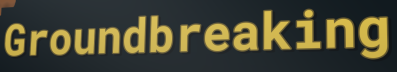
Groundbreaking